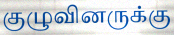
குழுவினருக்கு